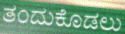
ತಂದುಕೊಡಲು